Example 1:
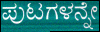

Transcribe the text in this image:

ಪುಟಗಳನ್ನೇ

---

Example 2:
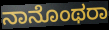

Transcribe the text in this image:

ನಾನೊಂಥರಾ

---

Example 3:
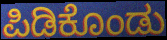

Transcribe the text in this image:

ಪಿಡಿಕೊಂಡು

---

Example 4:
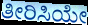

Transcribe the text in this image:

ತೀರಿಸಿಯೇ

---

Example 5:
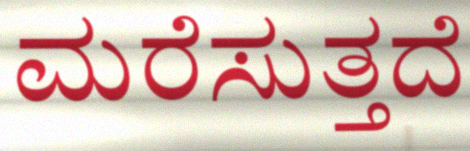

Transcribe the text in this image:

ಮರೆಸುತ್ತದೆ